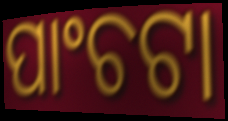
ପାଂଚଟା